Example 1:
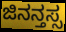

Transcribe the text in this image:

ಜಿನನ್ತಸ್ಸ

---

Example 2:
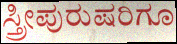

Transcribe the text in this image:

ಸ್ತ್ರೀಪುರುಷರಿಗೂ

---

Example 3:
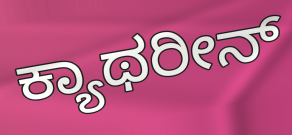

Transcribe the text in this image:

ಕ್ಯಾಥರೀನ್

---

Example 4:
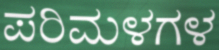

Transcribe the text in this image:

ಪರಿಮಳಗಳ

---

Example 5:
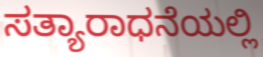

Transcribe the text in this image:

ಸತ್ಯಾರಾಧನೆಯಲ್ಲಿ